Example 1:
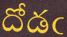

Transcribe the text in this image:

దోడఁ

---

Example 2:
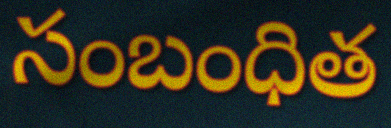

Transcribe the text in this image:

సంబంధిత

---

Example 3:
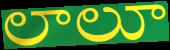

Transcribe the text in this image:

లాలూ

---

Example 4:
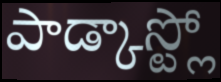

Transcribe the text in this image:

పాడ్కాస్ట్లో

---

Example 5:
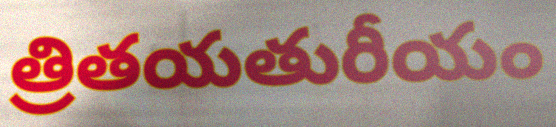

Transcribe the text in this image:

త్రితయతురీయం